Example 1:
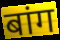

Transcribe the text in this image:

बांग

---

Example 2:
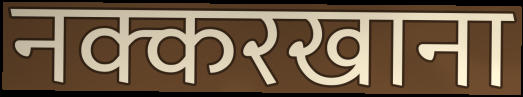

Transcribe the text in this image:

नक्करखाना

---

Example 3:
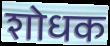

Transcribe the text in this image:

शोधक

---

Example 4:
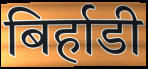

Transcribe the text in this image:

बिर्हाडी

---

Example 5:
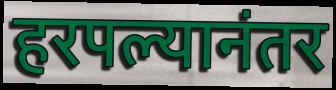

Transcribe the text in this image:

हरपल्यानंतर